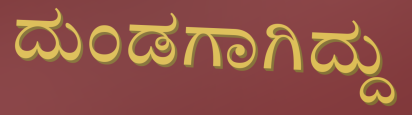
ದುಂಡಗಾಗಿದ್ದು